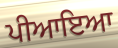
ਪੀਆਇਆ